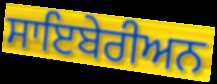
ਸਾਇਬੇਰੀਅਨ